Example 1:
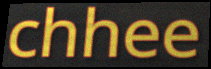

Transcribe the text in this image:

chhee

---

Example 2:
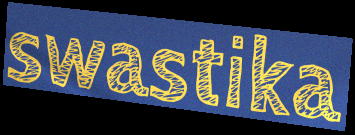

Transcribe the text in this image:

swastika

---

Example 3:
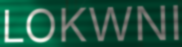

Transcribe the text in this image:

LOKWNI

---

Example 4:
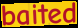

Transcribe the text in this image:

baited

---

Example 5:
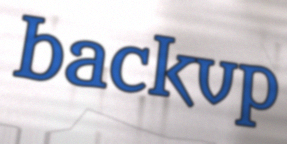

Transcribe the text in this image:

backup